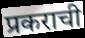
प्रकराची